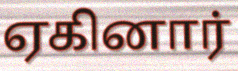
ஏகினார்